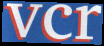
vcr